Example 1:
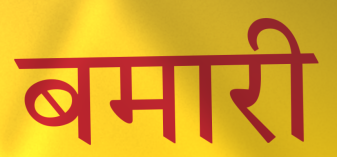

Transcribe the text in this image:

बमारी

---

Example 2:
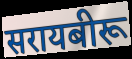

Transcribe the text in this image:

सरायबीरू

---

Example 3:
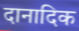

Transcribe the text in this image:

दानादिक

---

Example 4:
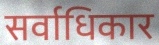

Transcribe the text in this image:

सर्वाधिकार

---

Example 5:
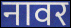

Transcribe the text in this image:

नावर